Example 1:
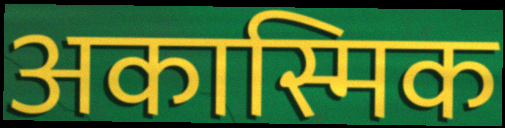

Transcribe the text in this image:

अकास्मिक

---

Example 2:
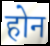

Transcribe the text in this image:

होन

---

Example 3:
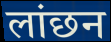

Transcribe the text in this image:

लांछन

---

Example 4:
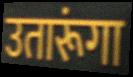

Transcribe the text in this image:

उतारूंगा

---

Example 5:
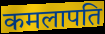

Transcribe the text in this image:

कमलापति